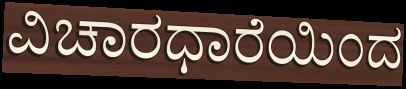
ವಿಚಾರಧಾರೆಯಿಂದ